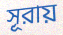
সূরায়